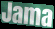
Jama